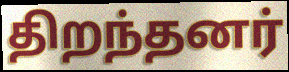
திறந்தனர்